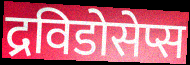
द्रविडोसेप्स